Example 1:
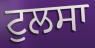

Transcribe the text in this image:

ਟੁਲਸਾ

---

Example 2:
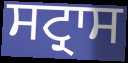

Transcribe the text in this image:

ਸਟ੍ਰਾਸ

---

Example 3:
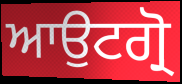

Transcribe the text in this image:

ਆਉਟਗ੍ਰੋ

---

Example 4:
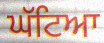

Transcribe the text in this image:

ਘੱਟਿਆ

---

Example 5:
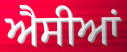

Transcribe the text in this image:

ਐਸੀਆਂ